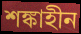
শঙ্কাহীন